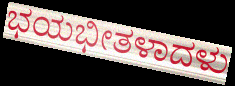
ಭಯಭೀತಳಾದಳು